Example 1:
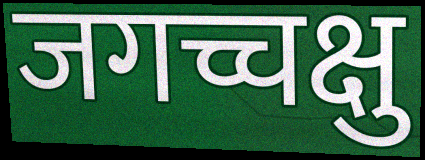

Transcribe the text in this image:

जगच्चक्षु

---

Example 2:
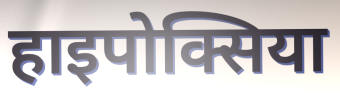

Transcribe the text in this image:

हाइपोक्सिया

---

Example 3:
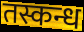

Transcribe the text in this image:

तस्कन्ध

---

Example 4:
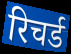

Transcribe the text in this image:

रिचर्ड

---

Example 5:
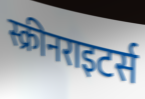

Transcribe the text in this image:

स्क्रीनराइटर्स